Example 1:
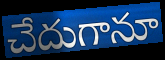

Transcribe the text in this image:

చేదుగానూ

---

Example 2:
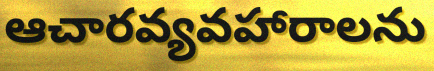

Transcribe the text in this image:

ఆచారవ్యవహారాలను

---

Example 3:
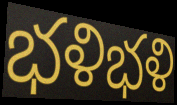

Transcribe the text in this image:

భళిభళి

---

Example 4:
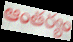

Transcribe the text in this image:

ఆంతర్యం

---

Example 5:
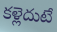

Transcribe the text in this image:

కళ్లెదుటే